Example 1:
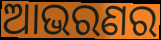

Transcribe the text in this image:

ଆଭରଣର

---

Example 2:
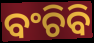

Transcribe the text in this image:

ବଂଚିବି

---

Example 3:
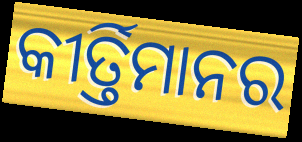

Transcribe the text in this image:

କୀର୍ତ୍ତିମାନର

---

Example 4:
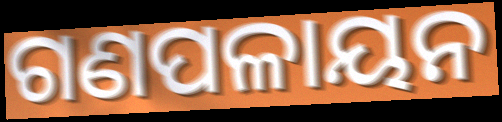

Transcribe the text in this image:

ଗଣପଳାୟନ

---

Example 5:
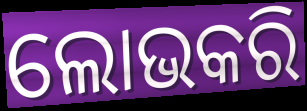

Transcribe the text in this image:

ଲୋଭକରି